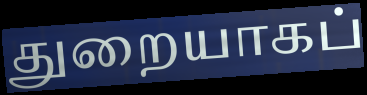
துறையாகப்